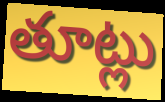
తూట్లు